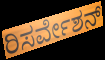
ರಿಸರ್ವೇಶನ್